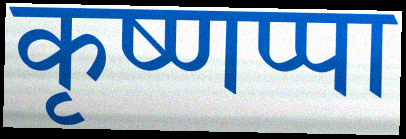
कृष्‍णप्‍पा